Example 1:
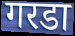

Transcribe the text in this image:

गरडा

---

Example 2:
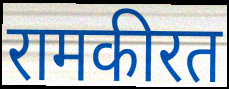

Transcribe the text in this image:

रामकीरत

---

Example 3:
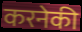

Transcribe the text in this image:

करनेकी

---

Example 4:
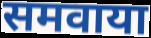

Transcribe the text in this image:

समवाया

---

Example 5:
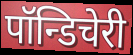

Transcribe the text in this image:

पॉन्डिचेरी